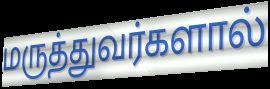
மருத்துவர்களால்